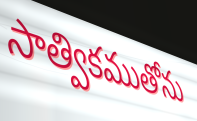
సాత్వికముతోను